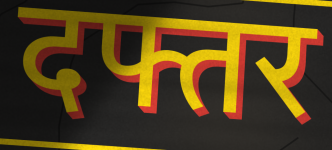
दफ्तर